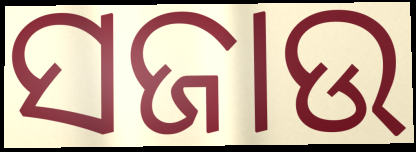
ସଜାଉ